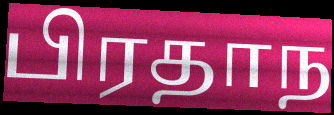
பிரதாந